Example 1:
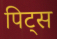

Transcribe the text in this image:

पिट्स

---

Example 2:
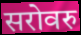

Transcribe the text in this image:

सरोवरु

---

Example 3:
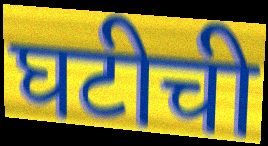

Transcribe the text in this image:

घटीची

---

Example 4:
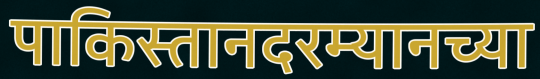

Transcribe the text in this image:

पाकिस्तानदरम्यानच्या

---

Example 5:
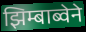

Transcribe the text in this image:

झिम्बाब्वेने